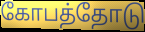
கோபத்தோடு